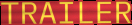
TRAILER